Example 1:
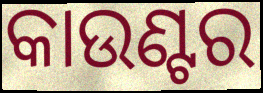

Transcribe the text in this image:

କାଉଣ୍ଟର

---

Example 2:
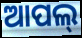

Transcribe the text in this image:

ଆପଲ୍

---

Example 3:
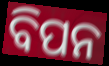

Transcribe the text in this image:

ବିପନ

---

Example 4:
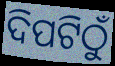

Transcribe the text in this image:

ଦିପଟିଠୁଁ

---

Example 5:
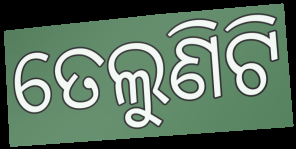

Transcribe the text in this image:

ତେଲୁଣିଟି